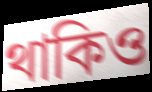
থাকিও